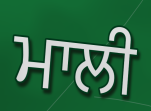
ਮਾਲੀ